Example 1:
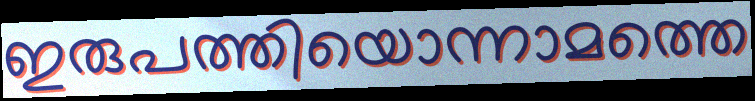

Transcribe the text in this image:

ഇരുപത്തിയൊന്നാമത്തെ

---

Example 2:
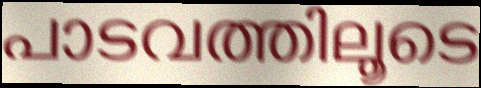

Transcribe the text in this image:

പാടവത്തിലൂടെ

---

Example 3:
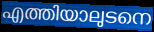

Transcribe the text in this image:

എത്തിയാലുടനെ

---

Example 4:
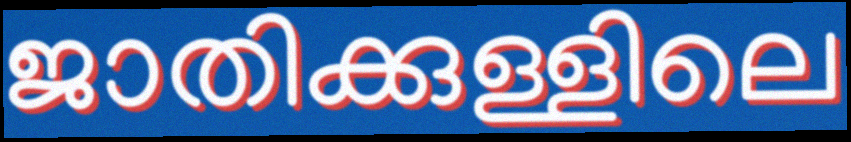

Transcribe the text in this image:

ജാതിക്കുള്ളിലെ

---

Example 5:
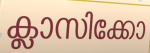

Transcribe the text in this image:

ക്ലാസിക്കോ